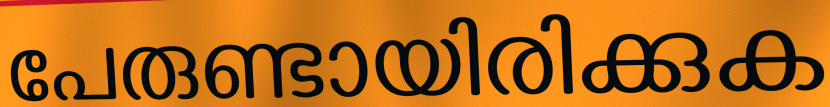
പേരുണ്ടായിരിക്കുക